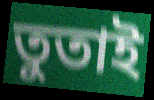
তুতাই